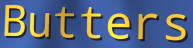
Butters